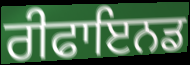
ਰੀਫਾਇਨਡ